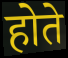
होते